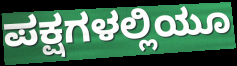
ಪಕ್ಷಗಳಲ್ಲಿಯೂ